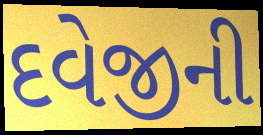
દવેજીની